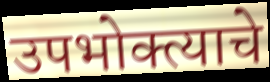
उपभोक्त्याचे